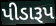
પીડારૂપ